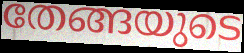
തേങ്ങയുടെ